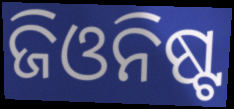
ଜିଓନିଷ୍ଟ